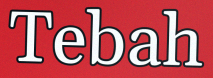
Tebah